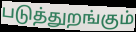
படுத்துறங்கும்